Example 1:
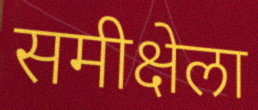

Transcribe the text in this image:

समीक्षेला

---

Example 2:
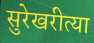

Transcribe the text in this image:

सुरेखरीत्या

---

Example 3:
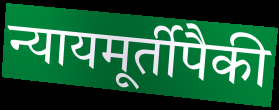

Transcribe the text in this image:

न्यायमूर्तीपैकी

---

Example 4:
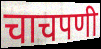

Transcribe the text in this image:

चाचपणी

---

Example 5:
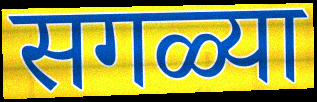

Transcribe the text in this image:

सगळ्या